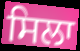
ਸਿਲਾ